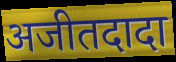
अजीतदादा